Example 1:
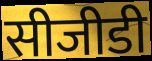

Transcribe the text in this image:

सीजीडी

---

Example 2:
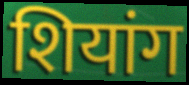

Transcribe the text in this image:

शियांग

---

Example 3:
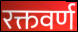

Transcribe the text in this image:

रक्तवर्ण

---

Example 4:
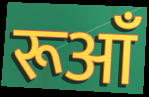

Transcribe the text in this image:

रूआँ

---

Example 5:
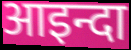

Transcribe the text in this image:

आइन्दा